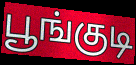
பூங்குடி